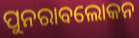
ପୁନରାବଲୋକନ